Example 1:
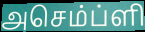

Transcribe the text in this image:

அசெம்ப்ளி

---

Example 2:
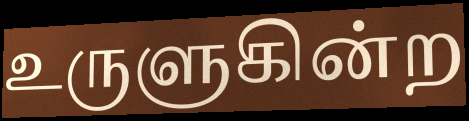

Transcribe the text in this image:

உருளுகின்ற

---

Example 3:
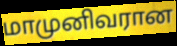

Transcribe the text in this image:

மாமுனிவரான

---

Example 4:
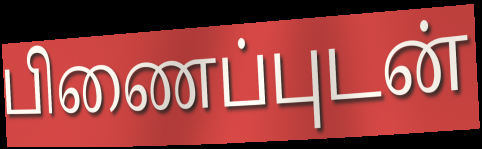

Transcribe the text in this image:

பிணைப்புடன்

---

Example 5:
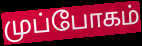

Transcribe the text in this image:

முப்போகம்